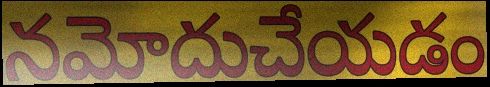
నమోదుచేయడం